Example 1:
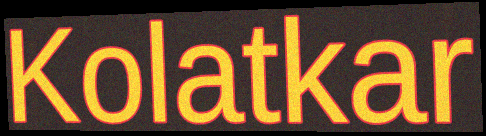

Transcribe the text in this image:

Kolatkar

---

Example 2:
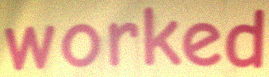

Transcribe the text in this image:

worked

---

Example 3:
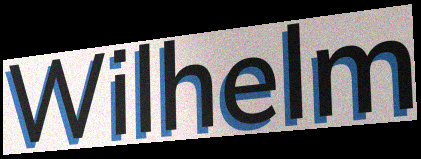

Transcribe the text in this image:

Wilhelm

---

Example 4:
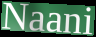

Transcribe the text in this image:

Naani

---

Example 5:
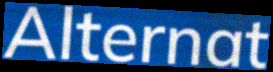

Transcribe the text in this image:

Alternat